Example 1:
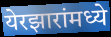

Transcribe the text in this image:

येरझारांमध्ये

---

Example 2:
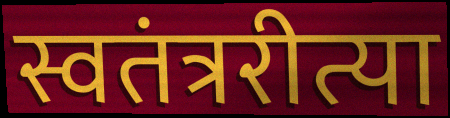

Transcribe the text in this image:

स्वतंत्ररीत्या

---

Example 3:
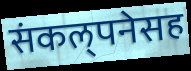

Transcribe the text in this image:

संकल्पनेसह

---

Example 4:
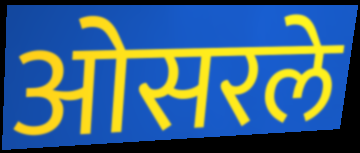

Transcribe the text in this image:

ओसरले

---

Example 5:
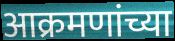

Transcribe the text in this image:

आक्रमणांच्या